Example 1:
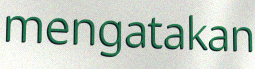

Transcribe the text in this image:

mengatakan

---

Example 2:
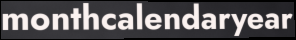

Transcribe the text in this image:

monthcalendaryear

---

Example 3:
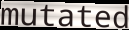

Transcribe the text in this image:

mutated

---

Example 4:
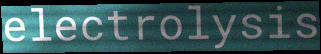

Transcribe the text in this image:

electrolysis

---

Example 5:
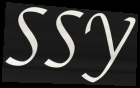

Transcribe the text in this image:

SSY